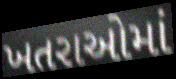
ખતરાઓમાં